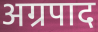
अग्रपाद